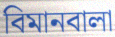
বিমানবালা